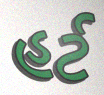
હર્ટ